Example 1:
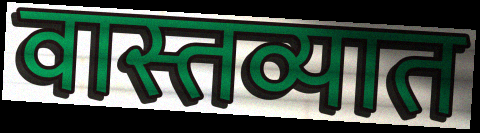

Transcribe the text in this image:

वास्तव्यात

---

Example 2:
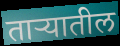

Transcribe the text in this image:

ताऱ्यातील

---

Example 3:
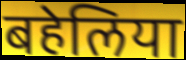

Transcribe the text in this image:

बहेलिया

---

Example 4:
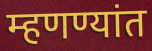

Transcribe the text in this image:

म्हणण्यांत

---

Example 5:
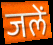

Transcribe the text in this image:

जलें